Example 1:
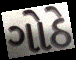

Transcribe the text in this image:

ગોઠે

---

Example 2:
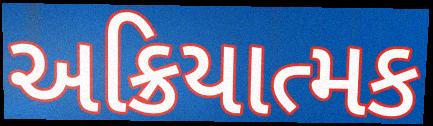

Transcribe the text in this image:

અક્રિયાત્મક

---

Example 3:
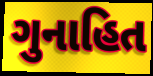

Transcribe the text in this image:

ગુનાહિત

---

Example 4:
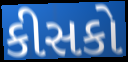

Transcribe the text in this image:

કીસકો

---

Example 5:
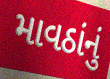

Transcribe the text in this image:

માવઠાંનું